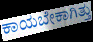
ಕಾಯಬೇಕಾಗಿತ್ತು